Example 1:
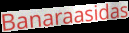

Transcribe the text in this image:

Banaraasidas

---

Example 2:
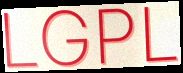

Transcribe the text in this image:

LGPL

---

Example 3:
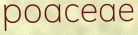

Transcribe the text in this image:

poaceae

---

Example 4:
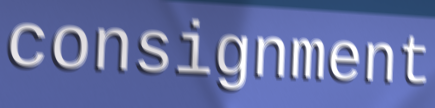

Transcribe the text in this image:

consignment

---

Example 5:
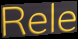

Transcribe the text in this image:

Rele